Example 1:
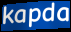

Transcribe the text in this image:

kapda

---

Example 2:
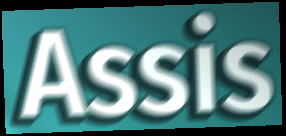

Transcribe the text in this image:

Assis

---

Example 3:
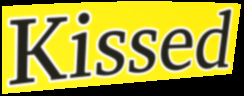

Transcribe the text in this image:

Kissed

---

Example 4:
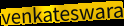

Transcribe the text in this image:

venkateswara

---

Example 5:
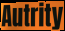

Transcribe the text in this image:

Autrity